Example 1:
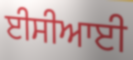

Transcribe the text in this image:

ਈਸੀਆਈ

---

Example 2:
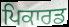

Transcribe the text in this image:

ਪਿਕਾਰਡ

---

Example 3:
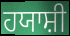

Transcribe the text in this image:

ਹਯਾਸ਼ੀ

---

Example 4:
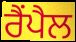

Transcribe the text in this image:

ਰੈਂਪੈਲ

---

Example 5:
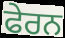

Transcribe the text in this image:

ਫੇਰਨ